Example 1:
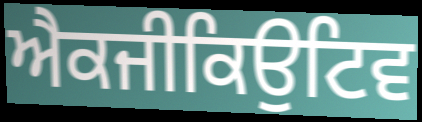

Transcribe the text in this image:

ਐਕਜੀਕਿਉਟਿਵ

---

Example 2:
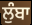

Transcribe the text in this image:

ਲੁੰਬਾ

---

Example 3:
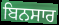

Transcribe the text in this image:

ਬਿਨਸਾਰ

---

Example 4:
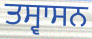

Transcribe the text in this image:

ਤਸ੍ਵਾਸਨ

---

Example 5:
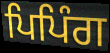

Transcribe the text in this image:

ਪਿਪਿੰਗ